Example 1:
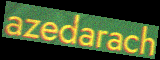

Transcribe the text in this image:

azedarach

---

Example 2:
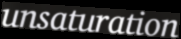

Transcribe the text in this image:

unsaturation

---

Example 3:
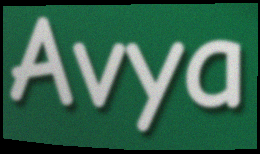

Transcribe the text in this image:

Avya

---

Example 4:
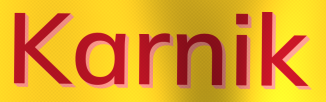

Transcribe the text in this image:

Karnik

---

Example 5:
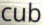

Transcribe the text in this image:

cub